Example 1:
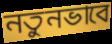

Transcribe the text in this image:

নতুনভাবে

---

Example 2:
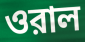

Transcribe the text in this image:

ওরাল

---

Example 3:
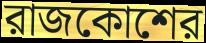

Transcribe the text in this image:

রাজকোশের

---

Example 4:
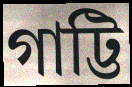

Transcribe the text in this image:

গাট্টি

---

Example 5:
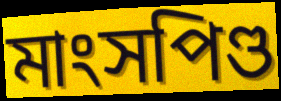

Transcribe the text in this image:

মাংসপিণ্ড